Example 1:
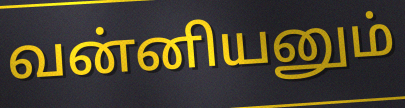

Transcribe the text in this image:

வன்னியனும்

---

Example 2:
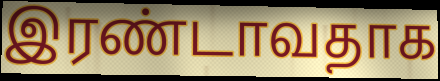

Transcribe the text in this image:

இரண்டாவதாக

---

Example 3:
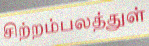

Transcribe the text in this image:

சிற்றம்பலத்துள்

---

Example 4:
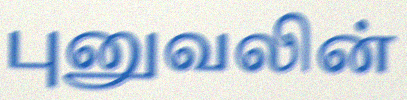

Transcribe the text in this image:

புனுவலின்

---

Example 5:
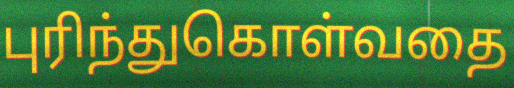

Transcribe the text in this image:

புரிந்துகொள்வதை